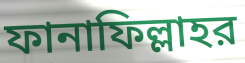
ফানাফিল্লাহর